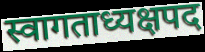
स्वागताध्यक्षपद